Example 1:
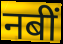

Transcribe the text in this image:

नबीं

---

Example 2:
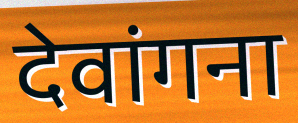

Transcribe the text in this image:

देवांगना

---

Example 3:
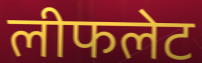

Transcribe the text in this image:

लीफलेट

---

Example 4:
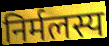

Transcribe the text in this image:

निर्मलस्य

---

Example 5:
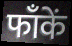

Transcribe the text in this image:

फाँकें